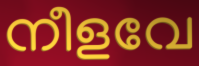
നീളവേ